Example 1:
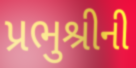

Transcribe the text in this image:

પ્રભુશ્રીની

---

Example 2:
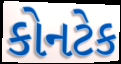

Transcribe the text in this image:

કોનટેક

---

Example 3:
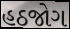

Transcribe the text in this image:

હઠજોગ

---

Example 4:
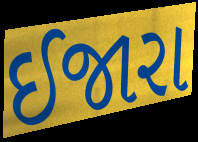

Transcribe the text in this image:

ઈજારા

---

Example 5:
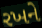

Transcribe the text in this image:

રખને